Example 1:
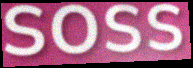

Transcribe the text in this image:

soss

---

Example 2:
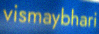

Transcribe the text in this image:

vismaybhari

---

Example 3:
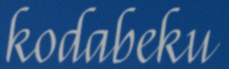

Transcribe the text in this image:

kodabeku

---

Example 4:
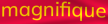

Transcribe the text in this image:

magnifique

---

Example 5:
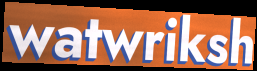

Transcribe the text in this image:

watwriksh